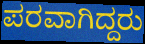
ಪರವಾಗಿದ್ದರು